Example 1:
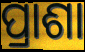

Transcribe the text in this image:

ପ୍ରାଶା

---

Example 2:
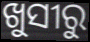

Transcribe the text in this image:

ଖୁସୀରୁ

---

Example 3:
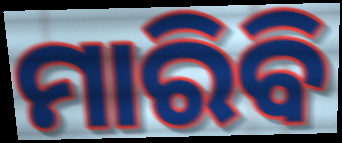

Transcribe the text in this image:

ମାରିବି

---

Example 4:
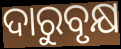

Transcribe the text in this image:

ଦାରୁବୃକ୍ଷ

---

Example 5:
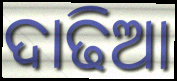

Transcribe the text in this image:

ଦାଢିଆ